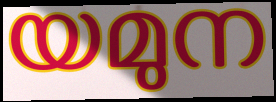
യമുന